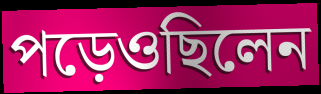
পড়েওছিলেন